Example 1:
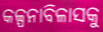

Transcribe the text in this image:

କଳ୍ପନାବିଳାସକୁ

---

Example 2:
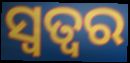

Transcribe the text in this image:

ସ୍ୱତ୍ୱର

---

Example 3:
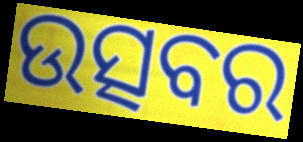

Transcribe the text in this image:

ଉତ୍ସବର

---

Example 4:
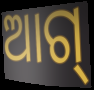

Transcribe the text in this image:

ଆଗ୍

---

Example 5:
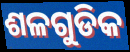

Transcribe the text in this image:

ଶଳଗୁଡିକ